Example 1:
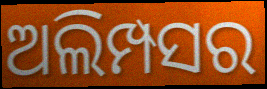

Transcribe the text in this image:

ଅଲିମ୍ପସର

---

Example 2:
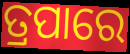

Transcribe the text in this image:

ତ୍ରପାରେ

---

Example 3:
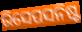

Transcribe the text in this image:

ରିସେପସନିଷ୍ଟ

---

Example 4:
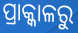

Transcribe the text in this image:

ପ୍ରାକ୍କାଳରୁ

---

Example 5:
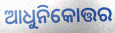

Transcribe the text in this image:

ଆଧୁନିକୋତ୍ତର